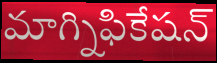
మాగ్నిఫికేషన్